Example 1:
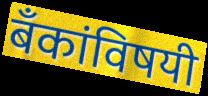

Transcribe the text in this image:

बँकांविषयी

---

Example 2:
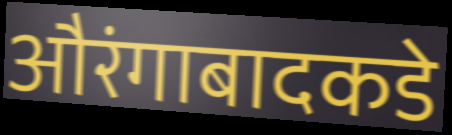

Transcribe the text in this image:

औरंगाबादकडे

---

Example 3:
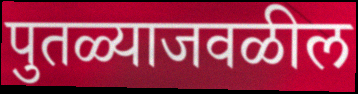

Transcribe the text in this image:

पुतळ्याजवळील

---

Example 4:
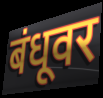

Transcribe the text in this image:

बंधूवर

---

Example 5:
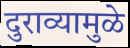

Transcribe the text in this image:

दुराव्यामुळे